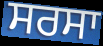
ਸਰਸਾ